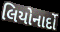
લિયોનાર્દો